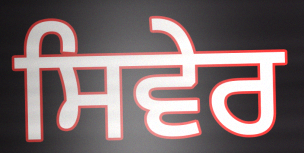
ਸਿਵੇਰ